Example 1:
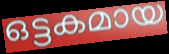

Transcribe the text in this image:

ഒട്ടകമായ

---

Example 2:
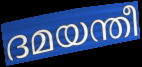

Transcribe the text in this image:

ദമയന്തീ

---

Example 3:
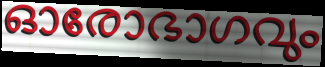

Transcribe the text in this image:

ഓരോഭാഗവും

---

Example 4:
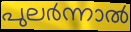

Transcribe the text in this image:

പുലർന്നാൽ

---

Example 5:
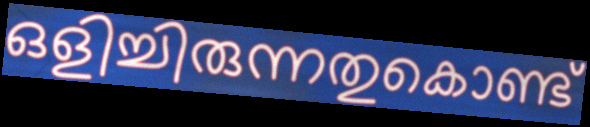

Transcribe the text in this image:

ഒളിച്ചിരുന്നതുകൊണ്ട്